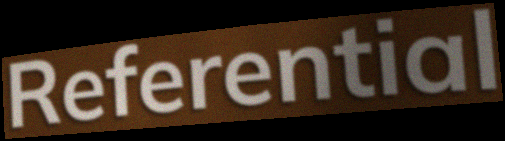
Referential